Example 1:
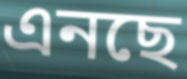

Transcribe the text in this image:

এনছে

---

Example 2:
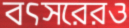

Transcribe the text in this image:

বৎসরেরও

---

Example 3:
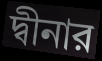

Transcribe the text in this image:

দ্বীনার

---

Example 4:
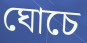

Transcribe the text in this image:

ঘোচে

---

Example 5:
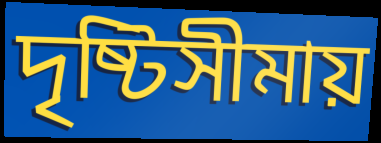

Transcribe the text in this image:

দৃষ্টিসীমায়